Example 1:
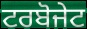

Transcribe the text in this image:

ਟਰਬੋਜੇਟ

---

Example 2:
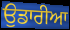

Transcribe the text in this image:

ਉਡਾਰੀਆ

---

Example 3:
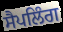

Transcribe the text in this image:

ਸੈਪਲਿੰਗ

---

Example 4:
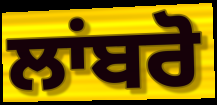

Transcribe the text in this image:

ਲਾਂਬਰੋ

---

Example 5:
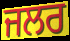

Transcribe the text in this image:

ਜਲਰ